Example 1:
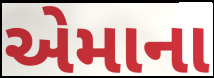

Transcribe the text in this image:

એમાના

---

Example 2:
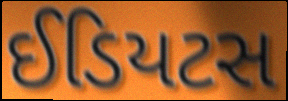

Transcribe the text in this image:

ઈડિયટસ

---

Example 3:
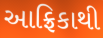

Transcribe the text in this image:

આફ્રિકાથી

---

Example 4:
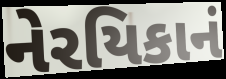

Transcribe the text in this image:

નેરયિકાનં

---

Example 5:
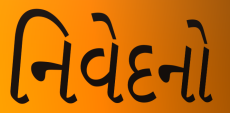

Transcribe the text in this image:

નિવેદનો